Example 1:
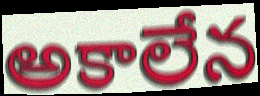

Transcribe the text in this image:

అకాలేన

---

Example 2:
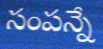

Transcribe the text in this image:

సంపన్నే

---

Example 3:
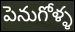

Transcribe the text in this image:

పెనుగోళ్ళ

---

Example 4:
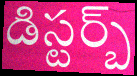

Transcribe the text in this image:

డిస్టర్బ్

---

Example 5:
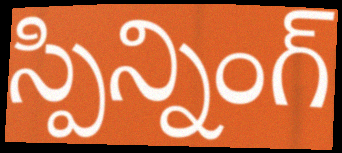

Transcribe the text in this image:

స్పిన్నింగ్